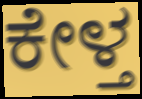
ಕೇಳ್ತ